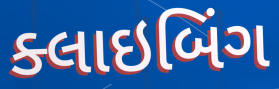
ક્લાઇબિંગ